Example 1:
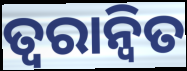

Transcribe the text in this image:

ତ୍ୱରାନ୍ୱିତ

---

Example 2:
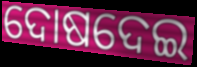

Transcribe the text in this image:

ଦୋଷଦେଇ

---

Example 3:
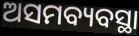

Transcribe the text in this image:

ଅସମବ୍ୟବସ୍ଥା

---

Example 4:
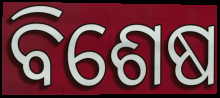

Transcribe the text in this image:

ବିଶେଷ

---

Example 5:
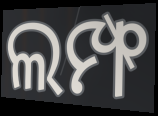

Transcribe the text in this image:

ଲମ୍ଫ